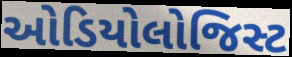
ઓડિયોલોજિસ્ટ